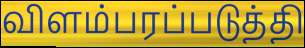
விளம்பரப்படுத்தி